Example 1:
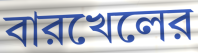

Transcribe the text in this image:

বারখেলের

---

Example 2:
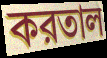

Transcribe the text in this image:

করতাল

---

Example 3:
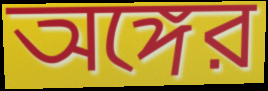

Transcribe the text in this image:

অঙ্গের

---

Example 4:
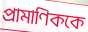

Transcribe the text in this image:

প্রামাণিককে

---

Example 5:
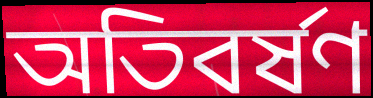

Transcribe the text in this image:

অতিবর্ষণ